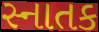
સ્નાતક